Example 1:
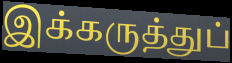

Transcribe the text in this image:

இக்கருத்துப்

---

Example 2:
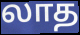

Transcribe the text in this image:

லாத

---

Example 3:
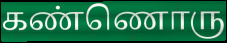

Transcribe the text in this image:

கண்ணொரு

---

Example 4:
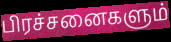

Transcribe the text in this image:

பிரச்சனைகளும்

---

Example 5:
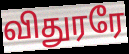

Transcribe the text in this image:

விதுரரே